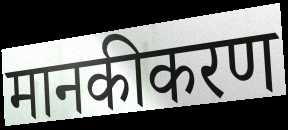
मानकीकरण